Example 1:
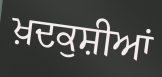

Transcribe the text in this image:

ਖ਼ਦਕੁਸ਼ੀਆਂ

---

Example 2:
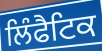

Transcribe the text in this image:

ਲਿੰਫੈਟਿਕ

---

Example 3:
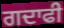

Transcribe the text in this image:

ਗਦਾਫੀ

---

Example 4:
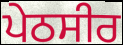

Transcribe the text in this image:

ਪੇਠਸੀਰ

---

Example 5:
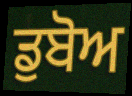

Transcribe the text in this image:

ਡੁਬੋਅ